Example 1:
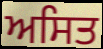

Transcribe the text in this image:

ਅਸਿਤ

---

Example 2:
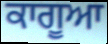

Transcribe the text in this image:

ਕਾਗੂਆ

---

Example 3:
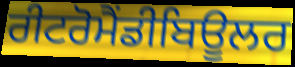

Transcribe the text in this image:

ਰੀਟਰੋਮੈਂਡੀਬਿਊਲਰ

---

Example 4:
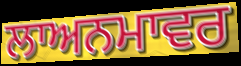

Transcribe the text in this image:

ਲਾਅਨਮਾਵਰ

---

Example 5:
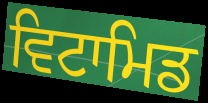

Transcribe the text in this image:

ਵਿਟਾਮਿਡ